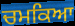
ਚਮਕਿਆ